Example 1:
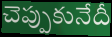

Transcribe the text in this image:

చెప్పుకునేదీ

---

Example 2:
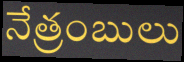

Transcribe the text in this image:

నేత్రంబులు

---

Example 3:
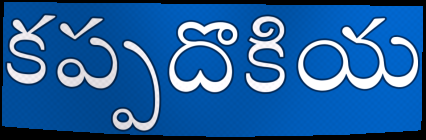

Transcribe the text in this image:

కప్పదొకియ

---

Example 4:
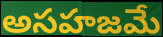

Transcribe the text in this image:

అసహజమే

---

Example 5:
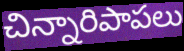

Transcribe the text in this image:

చిన్నారిపాపలు